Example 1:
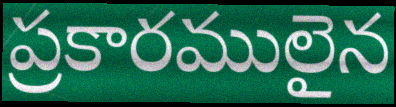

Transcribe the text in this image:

ప్రకారములైన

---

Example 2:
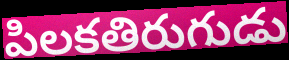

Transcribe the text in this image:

పిలకతిరుగుడు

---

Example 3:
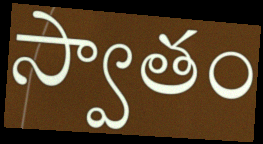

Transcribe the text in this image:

స్వాతం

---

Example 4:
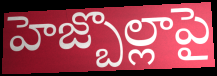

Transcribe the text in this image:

హెజ్బొల్లాపై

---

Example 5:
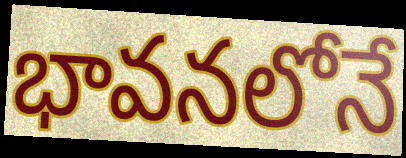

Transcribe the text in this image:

భావనలోనే